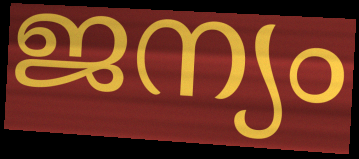
ജന്യം